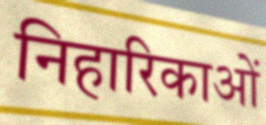
निहारिकाओं